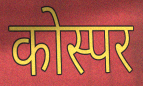
कोस्पर